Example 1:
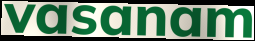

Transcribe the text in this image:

vasanam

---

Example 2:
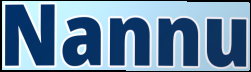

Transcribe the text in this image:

Nannu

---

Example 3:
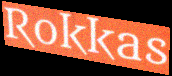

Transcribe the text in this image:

Rokkas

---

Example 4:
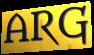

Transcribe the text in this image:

ARG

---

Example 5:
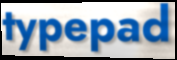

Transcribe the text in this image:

typepad